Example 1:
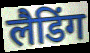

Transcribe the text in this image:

लैडिंग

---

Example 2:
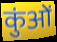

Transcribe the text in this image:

कुंओं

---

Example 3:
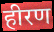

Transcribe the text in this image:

हीरण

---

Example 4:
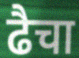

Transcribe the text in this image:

ढैचा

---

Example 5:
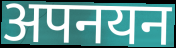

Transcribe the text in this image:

अपनयन